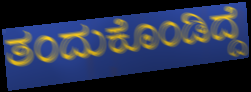
ತಂದುಕೊಂಡಿದ್ದೆ